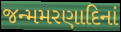
જન્મમરણાદિનાં